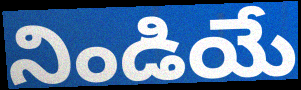
నిండియే